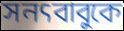
সনৎবাবুকে